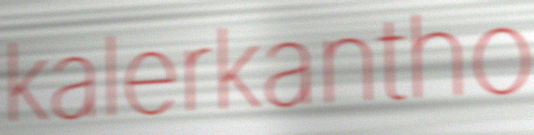
kalerkantho